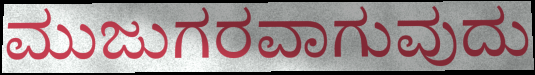
ಮುಜುಗರವಾಗುವುದು